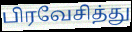
பிரவேசித்து